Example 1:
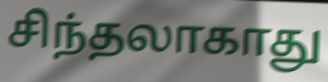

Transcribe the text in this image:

சிந்தலாகாது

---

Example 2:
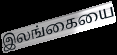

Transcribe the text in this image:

இலங்கையை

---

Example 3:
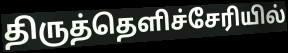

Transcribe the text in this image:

திருத்தெளிச்சேரியில்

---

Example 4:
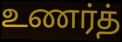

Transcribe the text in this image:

உணர்த்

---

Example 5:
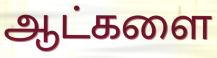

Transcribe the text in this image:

ஆட்களை